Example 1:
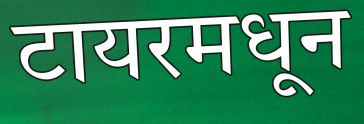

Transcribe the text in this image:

टायरमधून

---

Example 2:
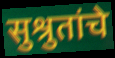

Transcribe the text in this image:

सुश्रुतांचे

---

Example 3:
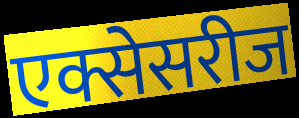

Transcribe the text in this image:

एक्सेसरीज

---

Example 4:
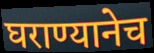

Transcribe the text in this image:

घराण्यानेच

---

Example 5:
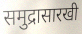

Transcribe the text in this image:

समुद्रासारखी